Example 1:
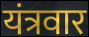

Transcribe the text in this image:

यंत्रवार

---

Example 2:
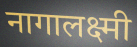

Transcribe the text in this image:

नागालक्ष्मी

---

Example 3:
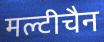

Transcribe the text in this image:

मल्टीचैन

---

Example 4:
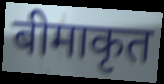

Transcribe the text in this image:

बीमाकृत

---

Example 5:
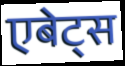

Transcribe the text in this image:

एबेट्स